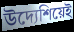
উদ্যেশিয়েই